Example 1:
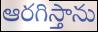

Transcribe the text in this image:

ఆరగిస్తాను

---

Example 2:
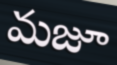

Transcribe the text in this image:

మజూ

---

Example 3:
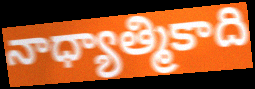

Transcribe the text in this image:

నాధ్యాత్మికాది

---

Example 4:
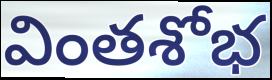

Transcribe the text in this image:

వింతశోభ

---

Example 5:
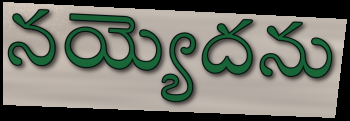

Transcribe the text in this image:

నయ్యెదను